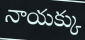
నాయక్కు